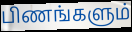
பிணங்களும்